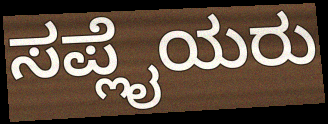
ಸಪ್ಲೈಯರು